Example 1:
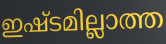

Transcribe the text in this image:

ഇഷ്ടമില്ലാത്ത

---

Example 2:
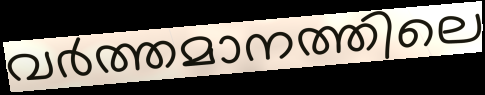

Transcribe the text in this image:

വർത്തമാനത്തിലെ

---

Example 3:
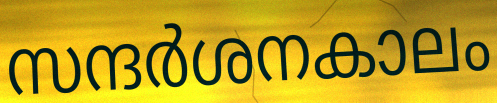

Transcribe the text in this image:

സന്ദർശനകാലം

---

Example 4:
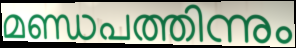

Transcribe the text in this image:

മണ്ഡപത്തിന്നും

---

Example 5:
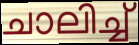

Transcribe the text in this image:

ചാലിച്ച്